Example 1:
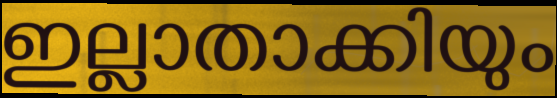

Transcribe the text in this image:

ഇല്ലാതാക്കിയും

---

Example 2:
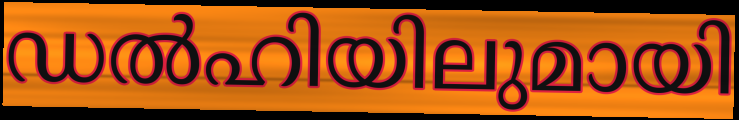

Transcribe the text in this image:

ഡൽഹിയിലുമായി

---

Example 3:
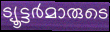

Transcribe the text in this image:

ട്യൂട്ടർമാരുടെ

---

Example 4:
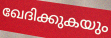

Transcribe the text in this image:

ഖേദിക്കുകയും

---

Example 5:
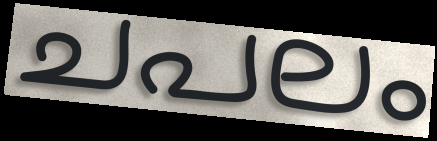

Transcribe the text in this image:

ചപലം